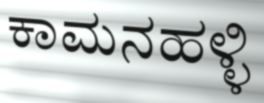
ಕಾಮನಹಳ್ಳಿ